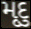
મૃદુ